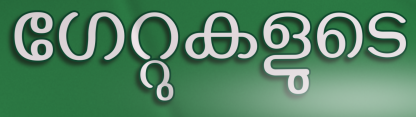
ഗേറ്റുകളുടെ